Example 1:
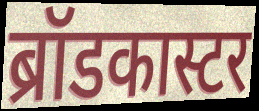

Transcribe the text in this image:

ब्रॉडकास्टर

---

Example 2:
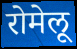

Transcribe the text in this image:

रोमेलू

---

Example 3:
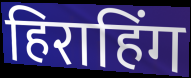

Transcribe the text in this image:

हिराहिंग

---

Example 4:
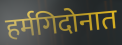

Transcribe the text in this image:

हर्मगिदोनात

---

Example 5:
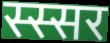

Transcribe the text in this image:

स्स्सर